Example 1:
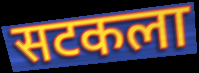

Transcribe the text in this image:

सटकला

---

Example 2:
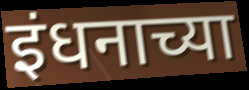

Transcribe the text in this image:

इंधनाच्या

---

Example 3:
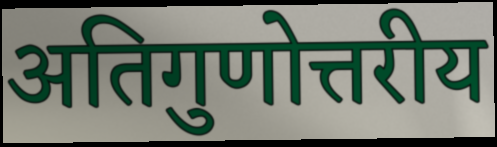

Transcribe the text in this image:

अतिगुणोत्तरीय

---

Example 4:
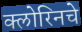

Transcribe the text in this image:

क्लोरिनचे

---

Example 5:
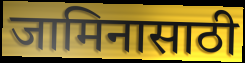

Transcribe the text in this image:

जामिनासाठी